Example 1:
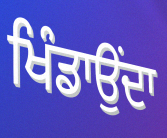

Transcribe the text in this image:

ਖਿੰਡਾਉਂਦਾ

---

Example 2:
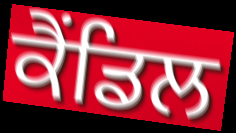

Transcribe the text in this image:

ਕੈਂਡਿਲ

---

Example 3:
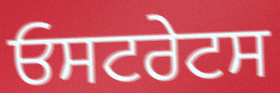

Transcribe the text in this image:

ਓਸਟਰੇਟਸ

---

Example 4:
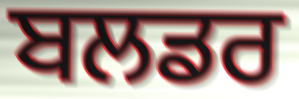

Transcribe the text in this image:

ਬਲਡਰ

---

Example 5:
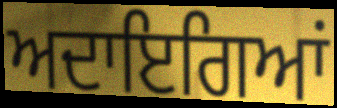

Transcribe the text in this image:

ਅਦਾਇਗਿਆਂ